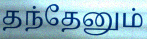
தந்தேனும்